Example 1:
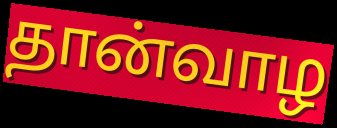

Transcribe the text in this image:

தான்வாழ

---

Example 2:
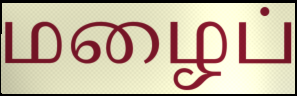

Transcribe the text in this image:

மழைப்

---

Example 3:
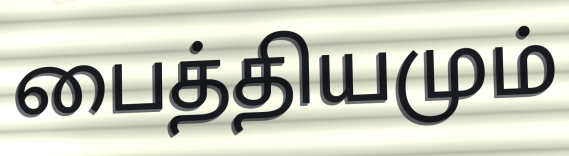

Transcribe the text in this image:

பைத்தியமும்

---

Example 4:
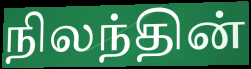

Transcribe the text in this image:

நிலந்தின்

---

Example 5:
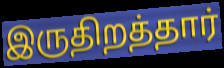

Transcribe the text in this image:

இருதிறத்தார்